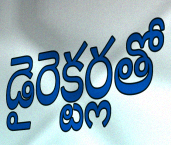
డైరెక్టర్లతో